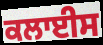
ਕਲਾਈਸ